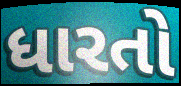
ધારતો